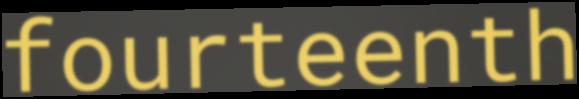
fourteenth